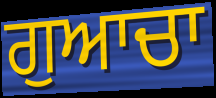
ਗੁਆਚਾ